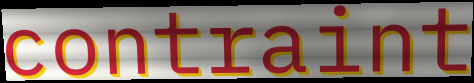
contraint